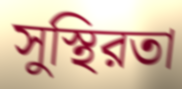
সুস্থিরতা